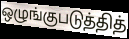
ஒழுங்குபடுத்தித்